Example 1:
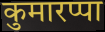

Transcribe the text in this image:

कुमारप्पा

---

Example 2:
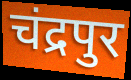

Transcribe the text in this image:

चंद्रपुर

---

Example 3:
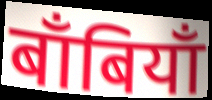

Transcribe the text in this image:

बाँबियाँ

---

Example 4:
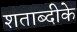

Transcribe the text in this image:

शताब्दीके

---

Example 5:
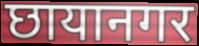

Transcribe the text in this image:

छायानगर